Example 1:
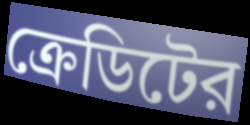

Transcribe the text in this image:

ক্রেডিটের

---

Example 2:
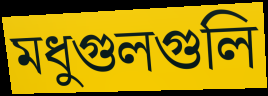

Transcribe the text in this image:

মধুগুলগুলি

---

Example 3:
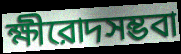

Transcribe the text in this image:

ক্ষীরোদসম্ভবা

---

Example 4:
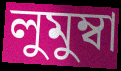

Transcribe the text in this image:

লুমুম্বা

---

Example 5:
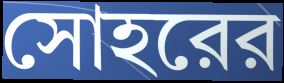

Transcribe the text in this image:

সোহরের